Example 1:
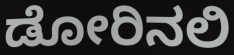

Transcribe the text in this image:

ಡೋರಿನಲಿ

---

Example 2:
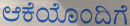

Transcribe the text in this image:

ಆಕೆಯೊಂದಿಗೆ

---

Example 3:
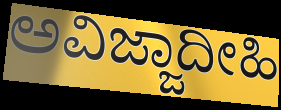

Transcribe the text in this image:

ಅವಿಜ್ಜಾದೀಹಿ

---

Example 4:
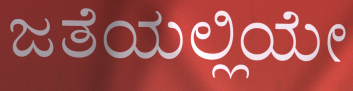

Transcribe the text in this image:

ಜತೆಯಲ್ಲಿಯೇ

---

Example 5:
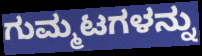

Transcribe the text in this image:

ಗುಮ್ಮಟಗಳನ್ನು